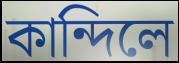
কান্দিলে